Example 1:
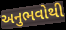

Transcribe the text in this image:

અનુભવોથી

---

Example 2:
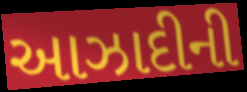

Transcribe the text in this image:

આઝાદીની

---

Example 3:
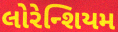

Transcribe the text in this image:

લોરેન્શિયમ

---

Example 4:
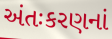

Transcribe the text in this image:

અંતઃકરણનાં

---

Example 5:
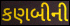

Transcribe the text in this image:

કણબીની